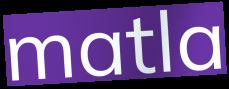
matla